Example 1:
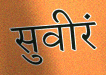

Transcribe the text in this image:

सुवीरं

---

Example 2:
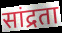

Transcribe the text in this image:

सांद्रता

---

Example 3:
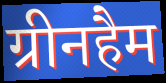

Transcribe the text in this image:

ग्रीनहैम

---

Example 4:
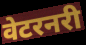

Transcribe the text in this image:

वेटरनरी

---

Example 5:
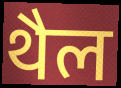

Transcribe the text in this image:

थैल